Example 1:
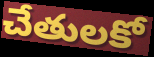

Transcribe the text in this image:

చేతులకో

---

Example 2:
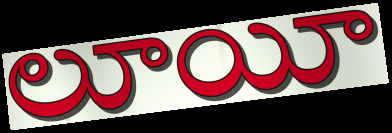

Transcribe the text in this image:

లూయీ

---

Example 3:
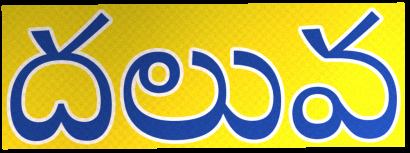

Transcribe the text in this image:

దలువ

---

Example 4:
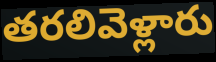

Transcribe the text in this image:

తరలివెళ్లారు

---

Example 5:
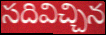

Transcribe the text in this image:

సదివిచ్చిన